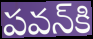
పవన్‌కి